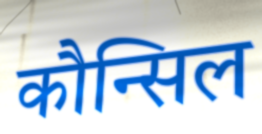
कौन्सिल